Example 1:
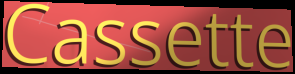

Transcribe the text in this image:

Cassette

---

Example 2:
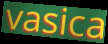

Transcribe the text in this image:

vasica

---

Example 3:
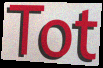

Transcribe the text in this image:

Tot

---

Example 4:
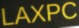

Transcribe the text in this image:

LAXPC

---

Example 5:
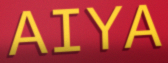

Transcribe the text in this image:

AIYA